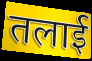
तलाई